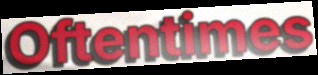
Oftentimes